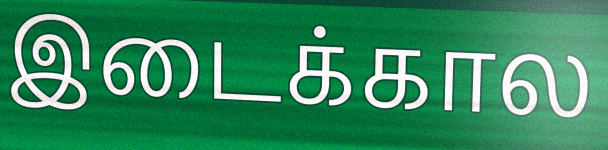
இடைக்கால